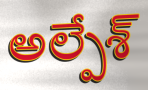
అల్పేశ్